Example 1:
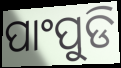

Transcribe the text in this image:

ପାଂପୁଡି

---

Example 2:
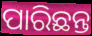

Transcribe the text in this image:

ପାରିଛନ୍ତ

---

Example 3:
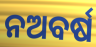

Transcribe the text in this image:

ନଅବର୍ଷ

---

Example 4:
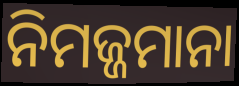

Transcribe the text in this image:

ନିମଜ୍ଜମାନା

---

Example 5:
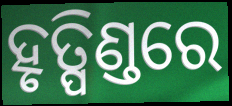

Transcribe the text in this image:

ହୃତ୍ପିଣ୍ଡରେ